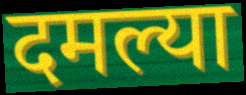
दमल्या